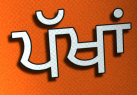
ਪੱਖਾਂ